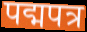
पद्मपत्र